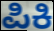
ಪಿಕಿ